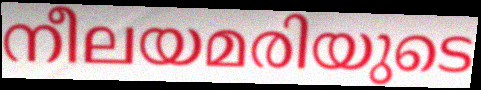
നീലയമരിയുടെ